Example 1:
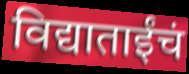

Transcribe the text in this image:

विद्याताईंचं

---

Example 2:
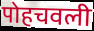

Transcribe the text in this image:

पोहचवली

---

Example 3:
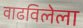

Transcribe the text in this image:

वाढविलेला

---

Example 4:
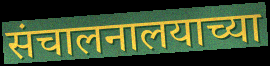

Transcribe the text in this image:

संचालनालयाच्या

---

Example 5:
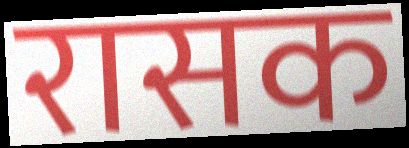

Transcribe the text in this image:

रासक